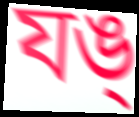
যঙ্